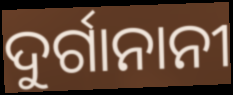
ଦୁର୍ଗାନାନୀ